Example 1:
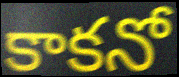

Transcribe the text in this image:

కాకనో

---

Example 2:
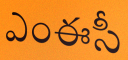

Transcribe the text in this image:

ఎంఈసీ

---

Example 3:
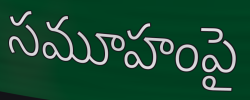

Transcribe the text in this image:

సమూహంపై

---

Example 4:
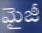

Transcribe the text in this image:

మైజీ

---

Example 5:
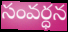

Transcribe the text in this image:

సంవర్ధన